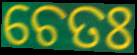
ଚେତଃ